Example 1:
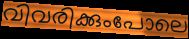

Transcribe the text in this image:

വിവരിക്കുംപോലെ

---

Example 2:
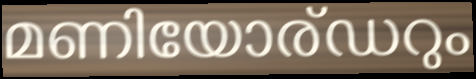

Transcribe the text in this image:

മണിയോര്ഡറും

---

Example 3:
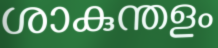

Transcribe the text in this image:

ശാകുന്തളം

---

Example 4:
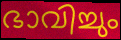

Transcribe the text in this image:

ഭാവിച്ചും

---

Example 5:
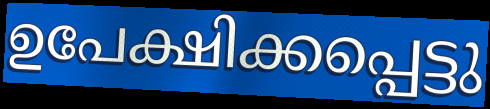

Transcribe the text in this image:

ഉപേക്ഷിക്കപ്പെട്ടു